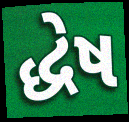
દ્ધેષ